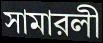
সামারলী